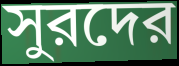
সুরদের